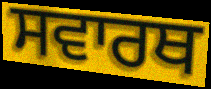
ਸਵਾਰਥ